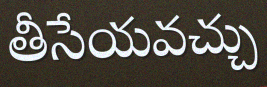
తీసేయవచ్చు